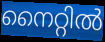
നൈറ്റിൽ